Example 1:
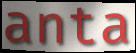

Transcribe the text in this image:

anta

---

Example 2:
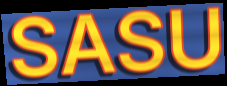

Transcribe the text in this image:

SASU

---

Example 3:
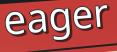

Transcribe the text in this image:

eager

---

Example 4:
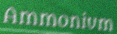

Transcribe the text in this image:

Ammonium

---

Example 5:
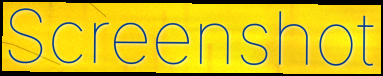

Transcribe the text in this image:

Screenshot